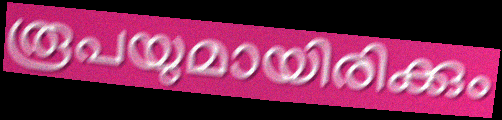
രൂപയുമായിരിക്കും